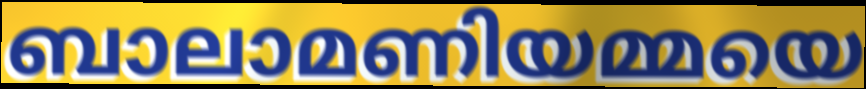
ബാലാമണിയമ്മയെ